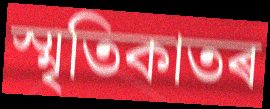
স্মৃতিকাতৰ